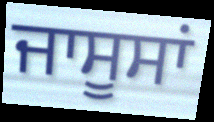
ਜਾਸੂਸਾਂ